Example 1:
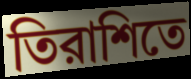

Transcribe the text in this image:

তিরাশিতে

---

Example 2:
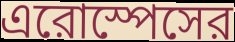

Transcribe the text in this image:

এরোস্পেসের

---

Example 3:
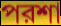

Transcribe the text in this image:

পরশা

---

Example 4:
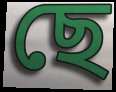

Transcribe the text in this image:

ছে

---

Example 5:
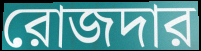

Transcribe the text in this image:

রোজদার